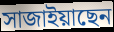
সাজাইয়াছেন